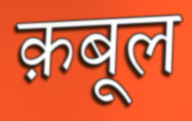
क़बूल